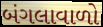
બંગલાવાળો